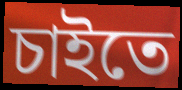
চাইতে